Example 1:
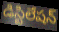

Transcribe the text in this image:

డిస్టిలేషన్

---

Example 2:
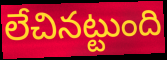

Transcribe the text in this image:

లేచినట్టుంది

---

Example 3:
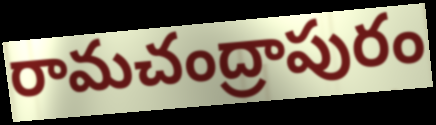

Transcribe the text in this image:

రామచంద్రాపురం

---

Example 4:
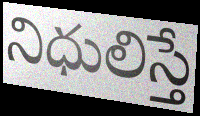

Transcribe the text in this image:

నిధులిస్తే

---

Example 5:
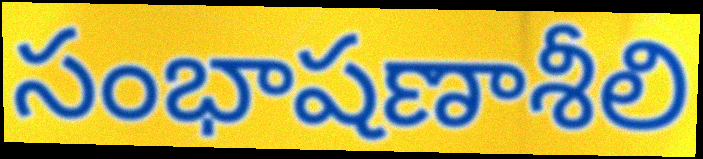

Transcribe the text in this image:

సంభాషణాశీలి